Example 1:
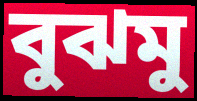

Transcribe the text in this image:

বুঝমু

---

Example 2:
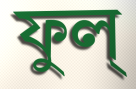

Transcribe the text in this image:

ফুল্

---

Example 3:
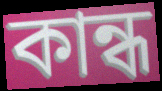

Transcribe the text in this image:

কান্ধ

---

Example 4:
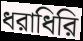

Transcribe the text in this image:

ধরাধিরি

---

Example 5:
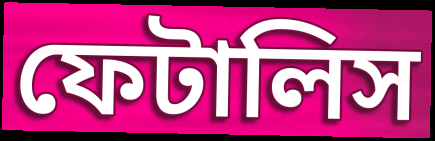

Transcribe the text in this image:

ফেটালিস